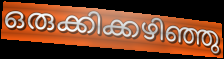
ഒരുക്കിക്കഴിഞ്ഞു